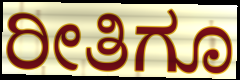
ರೀತಿಗೂ